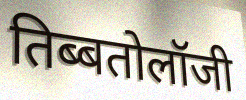
तिब्बतोलॉजी